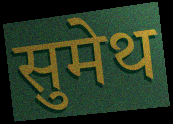
सुमेथ